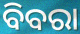
ବିବରା